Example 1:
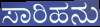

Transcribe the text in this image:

ಸಾರಿಹನು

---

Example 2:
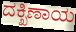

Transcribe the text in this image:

ದಕ್ಖಿಣಾಯ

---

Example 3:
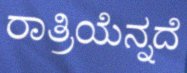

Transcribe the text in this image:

ರಾತ್ರಿಯೆನ್ನದೆ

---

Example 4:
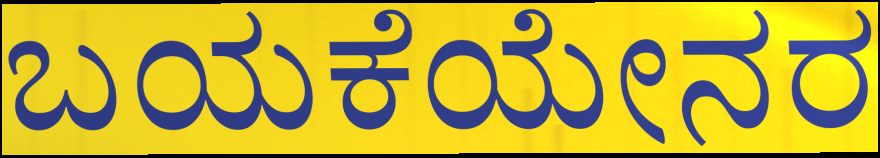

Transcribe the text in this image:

ಬಯಕೆಯೇನರ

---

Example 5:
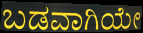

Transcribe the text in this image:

ಬಡವಾಗಿಯೇ